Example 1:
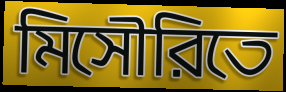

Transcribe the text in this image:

মিসৌরিতে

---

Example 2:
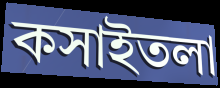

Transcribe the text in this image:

কসাইতলা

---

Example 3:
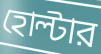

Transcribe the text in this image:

হোল্টার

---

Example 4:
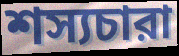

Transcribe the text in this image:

শস্যচারা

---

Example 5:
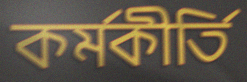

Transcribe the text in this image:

কর্মকীর্তি